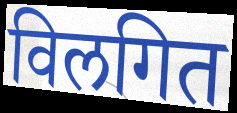
विलगित